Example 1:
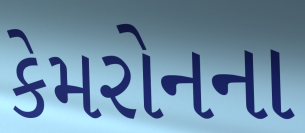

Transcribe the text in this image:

કેમરોનના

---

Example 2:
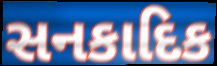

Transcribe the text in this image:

સનકાદિક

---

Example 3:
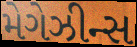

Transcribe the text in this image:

મેગેઝીન્સ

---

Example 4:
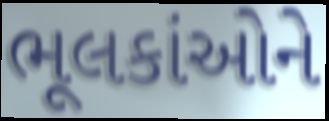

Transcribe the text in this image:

ભૂલકાંઓને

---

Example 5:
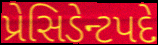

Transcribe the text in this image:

પ્રેસિડેન્ટપદે